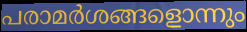
പരാമർശങ്ങളൊന്നും